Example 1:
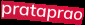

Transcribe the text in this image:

prataprao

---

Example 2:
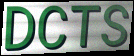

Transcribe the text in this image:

DCTS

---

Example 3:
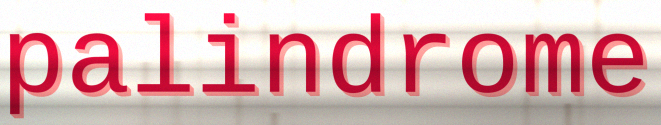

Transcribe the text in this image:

palindrome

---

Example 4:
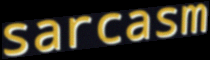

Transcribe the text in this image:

sarcasm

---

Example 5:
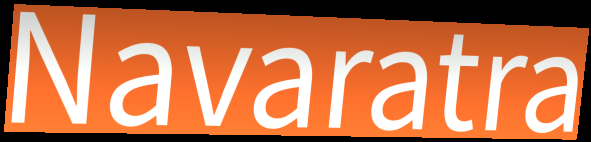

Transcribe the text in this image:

Navaratra